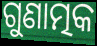
ଗୁଣାତ୍ମକ